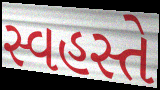
સ્વહસ્તે